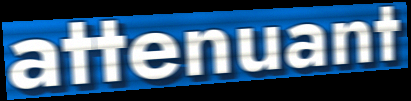
attenuant